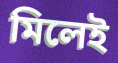
মিলেই